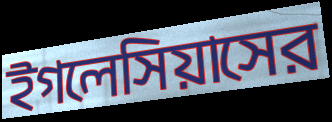
ইগলেসিয়াসের